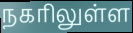
நகரிலுள்ள